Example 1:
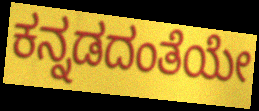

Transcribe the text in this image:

ಕನ್ನಡದಂತೆಯೇ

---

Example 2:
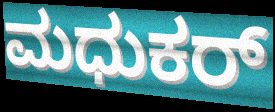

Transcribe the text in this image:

ಮಧುಕರ್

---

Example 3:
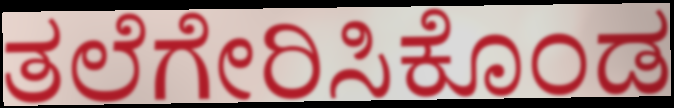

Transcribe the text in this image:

ತಲೆಗೇರಿಸಿಕೊಂಡ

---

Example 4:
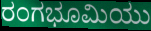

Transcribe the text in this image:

ರಂಗಭೂಮಿಯು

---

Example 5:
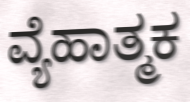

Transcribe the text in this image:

ವ್ಯೆಹಾತ್ಮಕ